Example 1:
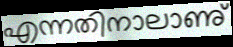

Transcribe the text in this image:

എന്നതിനാലാണു്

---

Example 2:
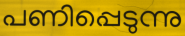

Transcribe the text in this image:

പണിപ്പെടുന്നു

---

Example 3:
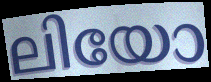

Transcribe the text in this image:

ലിയോ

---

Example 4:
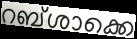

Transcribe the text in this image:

റബ്ശാക്കെ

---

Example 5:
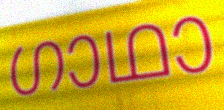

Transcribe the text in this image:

ഗാഥാ